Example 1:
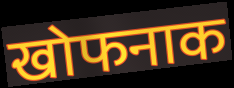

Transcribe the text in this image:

खोफनाक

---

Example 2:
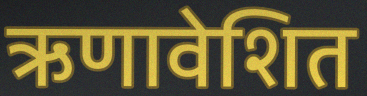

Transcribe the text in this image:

ऋणावेशित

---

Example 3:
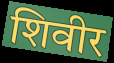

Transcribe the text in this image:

शिवीर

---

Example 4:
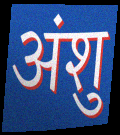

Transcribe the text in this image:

अंशु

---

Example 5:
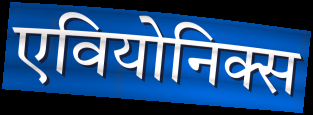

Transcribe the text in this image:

एवियोनिक्स